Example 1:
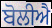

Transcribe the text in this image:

ਬੋਲੀਐ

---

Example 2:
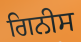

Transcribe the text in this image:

ਗਿਨੀਸ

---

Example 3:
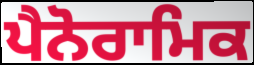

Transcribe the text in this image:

ਪੈਨੋਰਾਮਿਕ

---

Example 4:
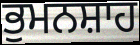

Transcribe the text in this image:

ਭੁਮਨਸ਼ਾਹ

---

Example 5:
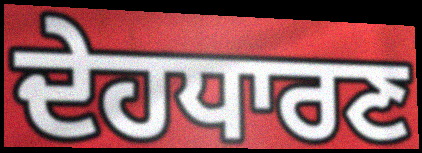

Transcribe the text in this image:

ਦੇਹਧਾਰਣ